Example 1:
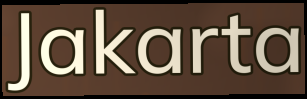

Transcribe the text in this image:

Jakarta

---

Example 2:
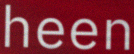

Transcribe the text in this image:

heen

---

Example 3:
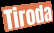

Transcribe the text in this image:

Tiroda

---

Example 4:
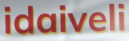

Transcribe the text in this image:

idaiveli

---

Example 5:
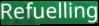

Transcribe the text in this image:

Refuelling